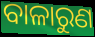
ବାଳାରୁଣ